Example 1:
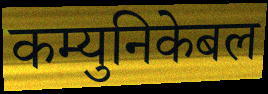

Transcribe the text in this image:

कम्युनिकेबल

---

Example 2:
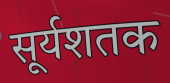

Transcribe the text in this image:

सूर्यशतक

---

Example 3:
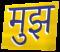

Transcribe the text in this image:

मुझ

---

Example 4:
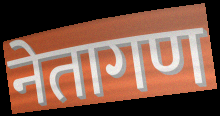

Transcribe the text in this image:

नेतागण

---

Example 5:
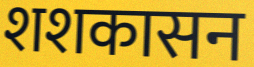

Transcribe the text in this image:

शशकासन